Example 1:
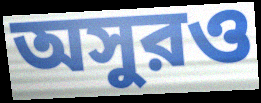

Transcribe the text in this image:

অসুরও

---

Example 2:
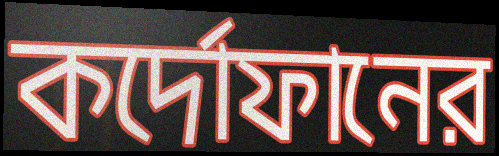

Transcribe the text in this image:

কর্দোফানের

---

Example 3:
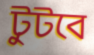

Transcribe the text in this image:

টুটবে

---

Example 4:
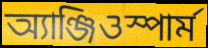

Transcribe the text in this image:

অ্যাঞ্জিওস্পার্ম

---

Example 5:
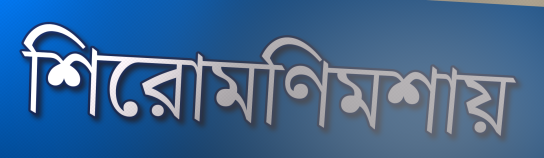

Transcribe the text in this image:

শিরোমণিমশায়